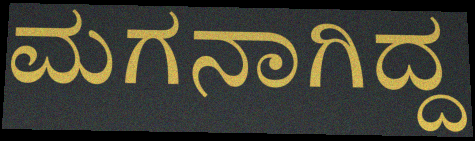
ಮಗನಾಗಿದ್ದ